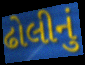
ઢોલીનું